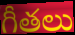
గీతలు